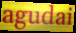
agudai